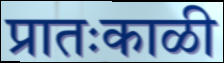
प्रातःकाळी